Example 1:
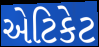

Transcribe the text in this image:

એટિકેટ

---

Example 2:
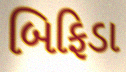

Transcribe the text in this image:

બિફિડા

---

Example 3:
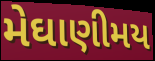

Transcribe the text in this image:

મેઘાણીમય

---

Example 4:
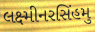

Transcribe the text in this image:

લક્ષ્મીનરસિંહમુ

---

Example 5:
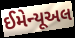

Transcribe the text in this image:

ઈમેન્યૂઅલ